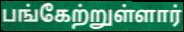
பங்கேற்றுள்ளார்